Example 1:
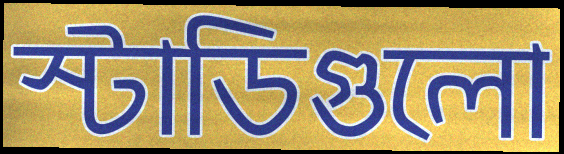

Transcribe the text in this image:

স্টাডিগুলো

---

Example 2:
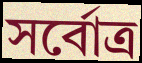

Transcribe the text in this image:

সর্বোত্র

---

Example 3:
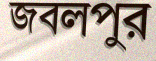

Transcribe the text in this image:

জবলপুর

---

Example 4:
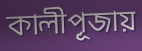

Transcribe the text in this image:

কালীপূজায়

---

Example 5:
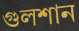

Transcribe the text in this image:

গুলশান